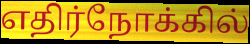
எதிர்நோக்கில்